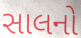
સાલનો